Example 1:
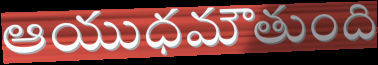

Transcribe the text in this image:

ఆయుధమౌతుంది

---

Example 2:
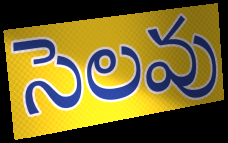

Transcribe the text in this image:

సెలవు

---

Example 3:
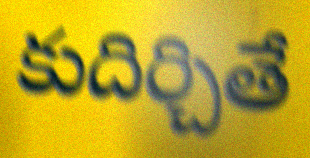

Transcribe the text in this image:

కుదిర్చితే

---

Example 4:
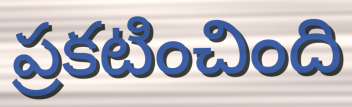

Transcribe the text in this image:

ప్రకటించింది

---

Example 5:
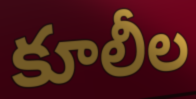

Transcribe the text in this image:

కూలీల